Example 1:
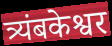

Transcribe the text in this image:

त्र्यंबकेश्वर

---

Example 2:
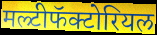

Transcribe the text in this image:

मल्टीफॅक्टोरियल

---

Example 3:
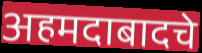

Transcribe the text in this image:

अहमदाबादचे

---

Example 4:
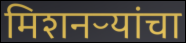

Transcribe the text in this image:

मिशनऱ्यांचा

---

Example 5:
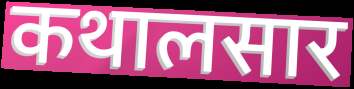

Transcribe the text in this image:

कथालसार